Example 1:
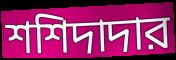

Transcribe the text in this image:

শশিদাদার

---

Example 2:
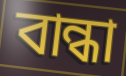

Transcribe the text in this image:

বান্ধা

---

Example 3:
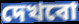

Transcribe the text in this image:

দেখবো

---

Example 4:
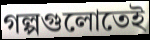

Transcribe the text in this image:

গল্পগুলোতেই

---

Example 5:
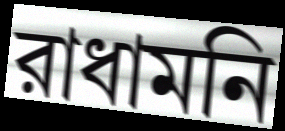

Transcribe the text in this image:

রাধামনি